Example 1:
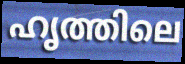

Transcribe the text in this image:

ഹൃത്തിലെ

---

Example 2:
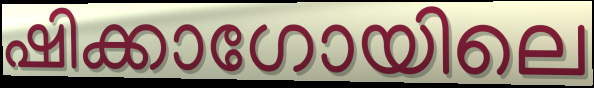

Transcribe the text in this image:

ഷിക്കാഗോയിലെ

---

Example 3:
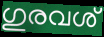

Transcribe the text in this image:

ഗുരവശ്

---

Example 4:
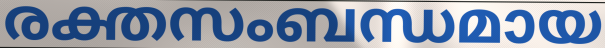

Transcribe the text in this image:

രക്തസംബന്ധമായ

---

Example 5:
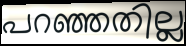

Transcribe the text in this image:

പറഞ്ഞതില്ല